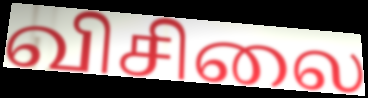
விசிலை